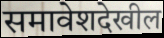
समावेशदेखील